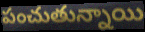
పంచుతున్నాయి